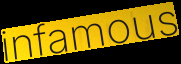
infamous